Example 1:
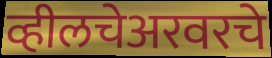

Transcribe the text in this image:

व्हीलचेअरवरचे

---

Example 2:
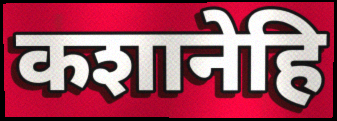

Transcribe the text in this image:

कशानेहि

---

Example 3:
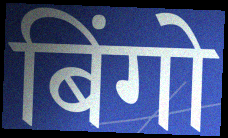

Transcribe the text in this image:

बिंगो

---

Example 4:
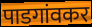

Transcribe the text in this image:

पाडगांवकर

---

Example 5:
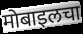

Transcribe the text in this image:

मोबाइलचा